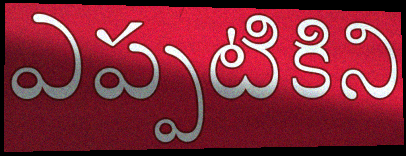
ఎప్పటికిని